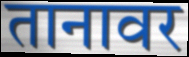
तानावर